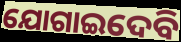
ଯୋଗାଇଦେବି